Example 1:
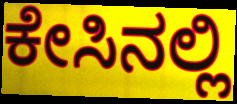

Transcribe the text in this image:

ಕೇಸಿನಲ್ಲಿ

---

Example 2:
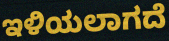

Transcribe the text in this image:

ಇಳಿಯಲಾಗದೆ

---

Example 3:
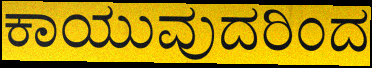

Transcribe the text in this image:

ಕಾಯುವುದರಿಂದ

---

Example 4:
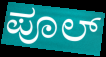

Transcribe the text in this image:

ಪೂಲ್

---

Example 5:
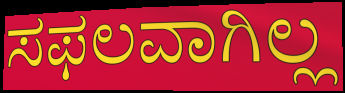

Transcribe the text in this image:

ಸಫಲವಾಗಿಲ್ಲ